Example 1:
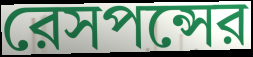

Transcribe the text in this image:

রেসপন্সের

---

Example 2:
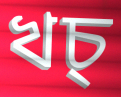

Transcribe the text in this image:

খচ্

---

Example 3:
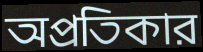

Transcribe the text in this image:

অপ্রতিকার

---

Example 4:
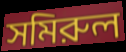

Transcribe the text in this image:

সমিরুল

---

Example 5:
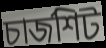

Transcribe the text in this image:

চার্জশিট